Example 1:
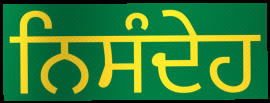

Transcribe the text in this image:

ਨਿਸੰਦੇਹ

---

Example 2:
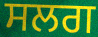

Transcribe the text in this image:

ਸਲਗ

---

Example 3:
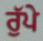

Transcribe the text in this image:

ਰੁੱਪੇ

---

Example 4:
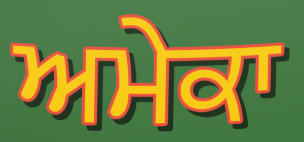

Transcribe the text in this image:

ਅਮੇਕਾ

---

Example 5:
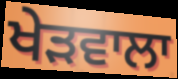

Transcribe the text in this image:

ਖੇੜਵਾਲਾ